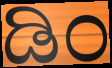
ಡಿಂ